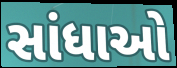
સાંધાઓ